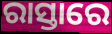
ରାସ୍ତାରେ